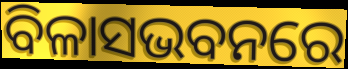
ବିଳାସଭବନରେ